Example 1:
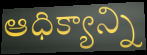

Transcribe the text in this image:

ఆధిక్యాన్ని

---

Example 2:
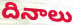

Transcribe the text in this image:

దినాలు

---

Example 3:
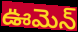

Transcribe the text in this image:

ఊమెన్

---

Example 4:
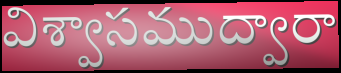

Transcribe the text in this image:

విశ్వాసముద్వారా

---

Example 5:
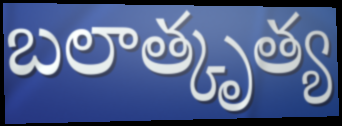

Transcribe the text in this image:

బలాత్కృత్య